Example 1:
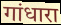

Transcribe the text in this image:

गांधारा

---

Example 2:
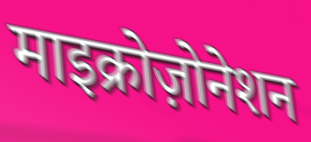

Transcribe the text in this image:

माइक्रोज़ोनेशन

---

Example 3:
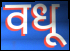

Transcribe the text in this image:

वधू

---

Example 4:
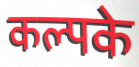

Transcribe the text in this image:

कल्पके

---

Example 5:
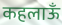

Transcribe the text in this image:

कहलाऊँ